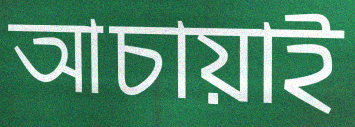
আচায়াই